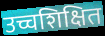
उच्चशिक्षित